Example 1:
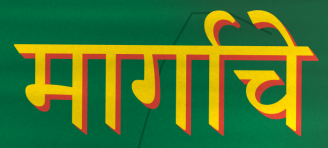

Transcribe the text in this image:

मार्गाचे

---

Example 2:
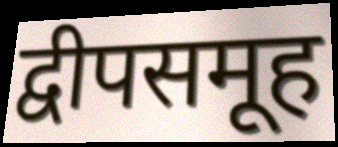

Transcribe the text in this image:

द्वीपसमूह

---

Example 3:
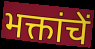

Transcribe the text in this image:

भक्तांचें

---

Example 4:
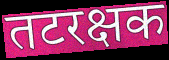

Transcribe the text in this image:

तटरक्षक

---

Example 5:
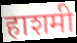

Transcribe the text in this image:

हाशमी